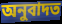
অনুবাদত